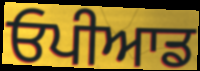
ਓਪੀਆਡ